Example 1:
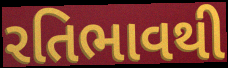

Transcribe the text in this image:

રતિભાવથી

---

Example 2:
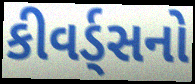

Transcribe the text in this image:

કીવર્ડ્સનો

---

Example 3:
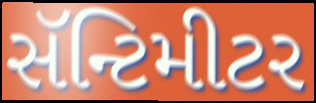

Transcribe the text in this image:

સૅન્ટિમીટર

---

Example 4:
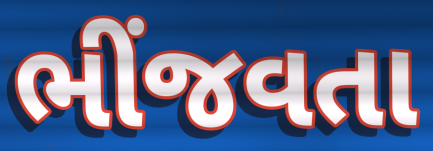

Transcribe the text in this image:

ભીંજવતા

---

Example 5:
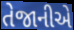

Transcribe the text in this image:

તેજાનીએ